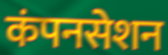
कंपनसेशन